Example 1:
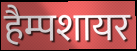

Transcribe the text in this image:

हैम्पशायर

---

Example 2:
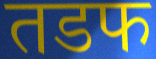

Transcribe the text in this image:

तडफ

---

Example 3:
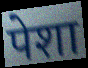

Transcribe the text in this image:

पेशा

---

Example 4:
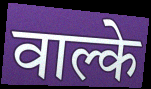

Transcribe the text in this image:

वाल्के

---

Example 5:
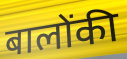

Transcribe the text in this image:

बालोंकी